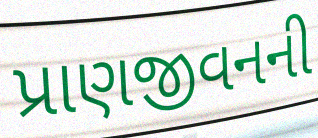
પ્રાણજીવનની